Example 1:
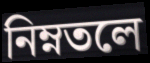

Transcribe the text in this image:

নিম্নতলে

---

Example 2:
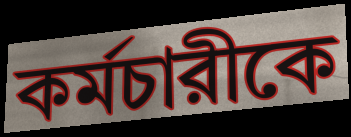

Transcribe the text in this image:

কর্মচারীকে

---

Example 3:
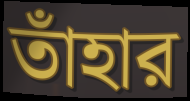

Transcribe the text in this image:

তাঁহার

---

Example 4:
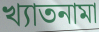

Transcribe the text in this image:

খ্যাতনামা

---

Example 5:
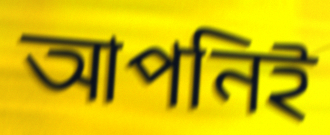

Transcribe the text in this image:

আপনিই